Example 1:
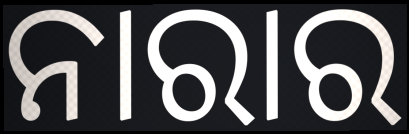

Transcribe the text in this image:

ନାରାର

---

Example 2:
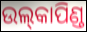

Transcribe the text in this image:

ଉଲ୍‌କାପିଣ୍ଡ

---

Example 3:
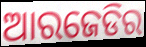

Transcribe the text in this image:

ଆରଜେଡିର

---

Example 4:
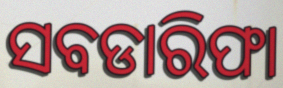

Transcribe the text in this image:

ସବଡାରିଫା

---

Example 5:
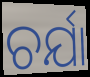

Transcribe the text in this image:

ଚର୍ଯା